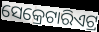
ସେକ୍ରେଟାରିଏଟ୍ର